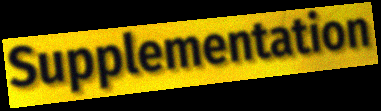
Supplementation